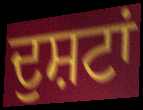
ਦੁਸ਼ਟਾਂ